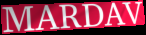
MARDAV